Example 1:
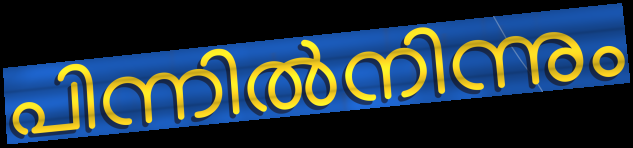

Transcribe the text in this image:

പിന്നിൽനിന്നും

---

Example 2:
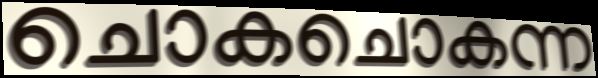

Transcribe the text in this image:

ചൊകചൊകന്ന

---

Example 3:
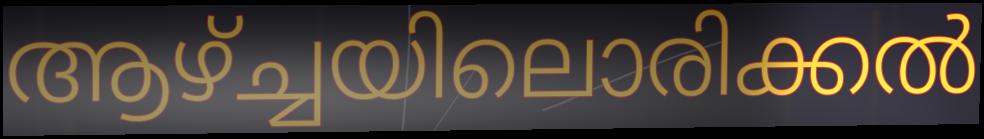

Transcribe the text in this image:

ആഴ്ച്ചയിലൊരിക്കൽ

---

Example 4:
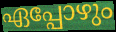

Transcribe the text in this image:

ഏപ്പോഴും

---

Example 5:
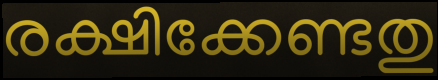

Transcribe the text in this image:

രക്ഷിക്കേണ്ടതു